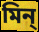
মিন্